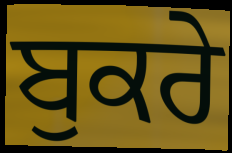
ਬੁਕਰੇ